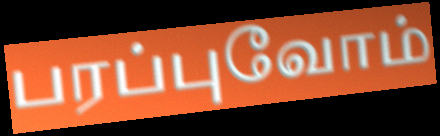
பரப்புவோம்